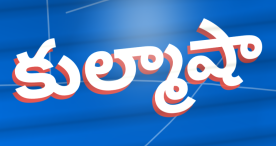
కుల్మాషా